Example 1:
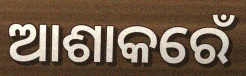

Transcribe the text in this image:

ଆଶାକରେଁ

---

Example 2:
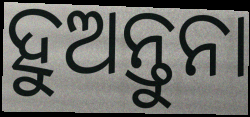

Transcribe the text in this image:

ହୁଅନ୍ତୁନା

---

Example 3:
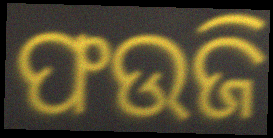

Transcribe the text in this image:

ଫଉଜି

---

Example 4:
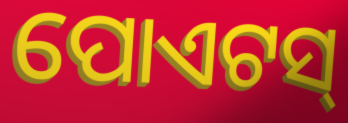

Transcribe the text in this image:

ପୋଏଟସ୍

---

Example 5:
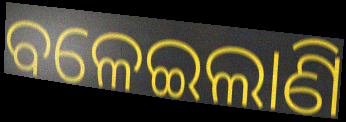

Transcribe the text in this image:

ବଳେଇଲାଣି